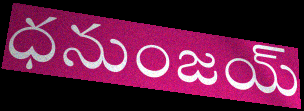
ధనుంజయ్